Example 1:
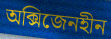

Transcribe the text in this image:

অক্সিজেনহীন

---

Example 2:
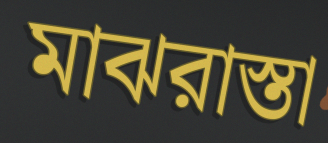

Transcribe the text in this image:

মাঝরাস্তা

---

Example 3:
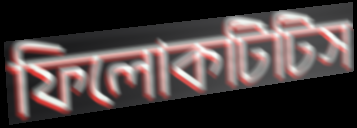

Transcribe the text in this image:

ফিলোকটিটিস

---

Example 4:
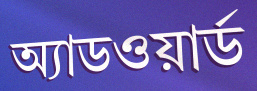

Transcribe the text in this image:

অ্যাডওয়ার্ড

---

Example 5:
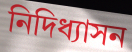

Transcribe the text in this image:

নিদিধ্যাসন